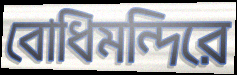
বোধিমন্দিরে